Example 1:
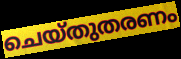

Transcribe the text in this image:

ചെയ്തുതരണം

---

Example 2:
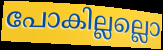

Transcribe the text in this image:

പോകില്ലല്ലൊ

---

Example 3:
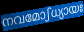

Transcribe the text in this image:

നവമോഽധ്യായഃ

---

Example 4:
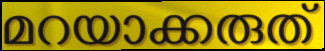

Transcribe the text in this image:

മറയാക്കരുത്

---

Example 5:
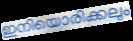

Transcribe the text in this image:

ഇനിയൊരിക്കലും